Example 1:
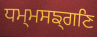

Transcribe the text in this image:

ਧਮ੍ਮਸਙ੍ਗਣਿ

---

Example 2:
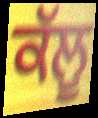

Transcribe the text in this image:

ਕੱਲੂ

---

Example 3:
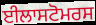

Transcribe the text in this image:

ਈਲਾਸਟੋਮਰਸ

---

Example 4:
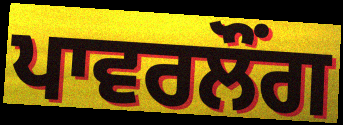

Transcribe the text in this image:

ਪਾਵਰਲੌਂਗ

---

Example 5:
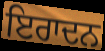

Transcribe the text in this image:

ਇਰਾਦਨ